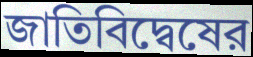
জাতিবিদ্বেষের